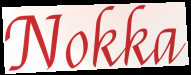
Nokka